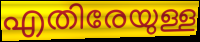
എതിരേയുള്ള